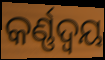
କର୍ଣ୍ଣଦ୍ୱୟ